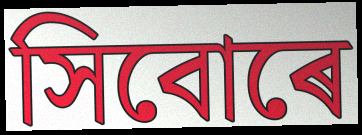
সিবোৰে